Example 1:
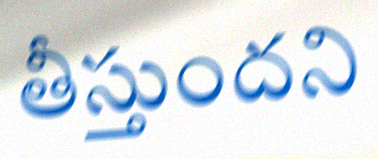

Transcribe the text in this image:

తీస్తుందని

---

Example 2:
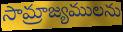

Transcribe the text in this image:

సామ్రాజ్యములను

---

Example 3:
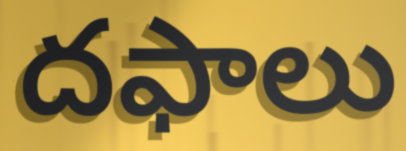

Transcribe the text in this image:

దఫాలు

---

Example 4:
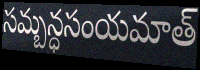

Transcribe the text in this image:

సమ్బన్ధసంయమాత్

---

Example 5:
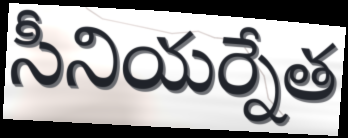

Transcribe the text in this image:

సీనియర్నేత